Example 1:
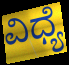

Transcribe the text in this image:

ವಿಧ್ಯೆ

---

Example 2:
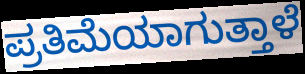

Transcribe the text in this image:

ಪ್ರತಿಮೆಯಾಗುತ್ತಾಳೆ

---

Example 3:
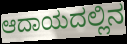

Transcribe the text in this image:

ಆದಾಯದಲ್ಲಿನ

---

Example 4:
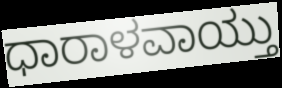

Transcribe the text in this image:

ಧಾರಾಳವಾಯ್ತು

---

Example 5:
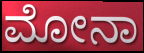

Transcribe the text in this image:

ಮೋನಾ